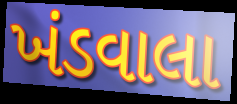
ખંડવાલા